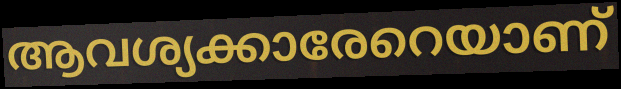
ആവശ്യക്കാരേറെയാണ്